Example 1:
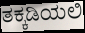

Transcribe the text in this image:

ತಕ್ಕಡಿಯಲಿ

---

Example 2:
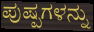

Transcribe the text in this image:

ಪುಷ್ಪಗಳನ್ನು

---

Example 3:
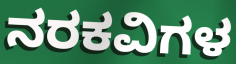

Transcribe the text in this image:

ನರಕವಿಗಳ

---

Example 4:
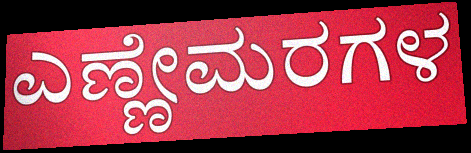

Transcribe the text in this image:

ಎಣ್ಣೇಮರಗಳ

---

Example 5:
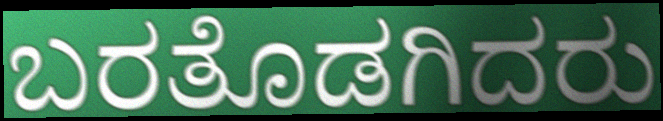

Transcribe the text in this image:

ಬರತೊಡಗಿದರು